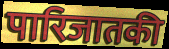
पारिजातकी